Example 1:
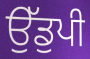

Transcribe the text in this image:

ਉੱਡੁਪੀ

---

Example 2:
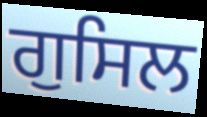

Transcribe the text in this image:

ਗੁਸਿਲ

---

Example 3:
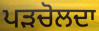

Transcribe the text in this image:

ਪੜਚੋਲਦਾ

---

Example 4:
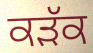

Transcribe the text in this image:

ਕੜੱਕ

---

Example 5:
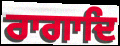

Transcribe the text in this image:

ਰਾਗਾਦਿ